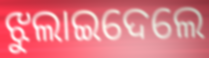
ଝୁଲାଇଦେଲେ